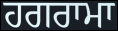
ਹਗਰਾਮਾ